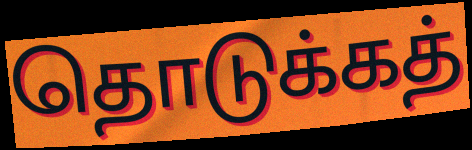
தொடுக்கத்